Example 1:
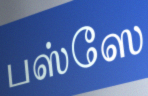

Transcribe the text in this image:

பஸ்ஸே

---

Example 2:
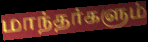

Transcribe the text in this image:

மாந்தர்களும்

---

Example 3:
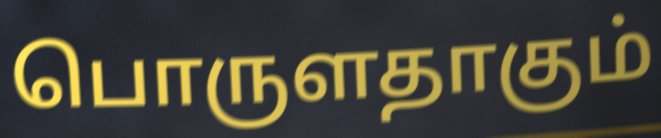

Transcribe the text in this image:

பொருளதாகும்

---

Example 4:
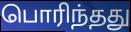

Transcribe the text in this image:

பொரிந்தது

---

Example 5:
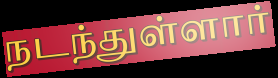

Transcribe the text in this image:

நடந்துள்ளார்